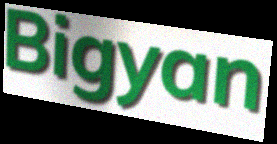
Bigyan